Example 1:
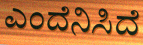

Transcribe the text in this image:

ಎಂದೆನಿಸಿದೆ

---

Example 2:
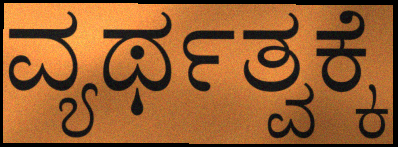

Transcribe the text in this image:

ವ್ಯರ್ಥತ್ವಕ್ಕೆ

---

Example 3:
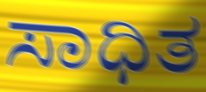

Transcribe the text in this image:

ಸಾಧಿತ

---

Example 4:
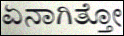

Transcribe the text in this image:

ಏನಾಗಿತ್ತೋ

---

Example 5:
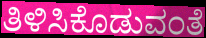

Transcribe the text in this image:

ತಿಳಿಸಿಕೊಡುವಂತೆ